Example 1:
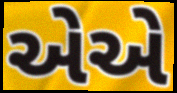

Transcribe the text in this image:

એએ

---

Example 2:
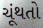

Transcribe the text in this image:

ચૂંથતો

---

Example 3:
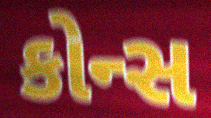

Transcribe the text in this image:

કોન્સ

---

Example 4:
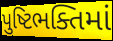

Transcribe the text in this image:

પુષ્ટિભક્તિમાં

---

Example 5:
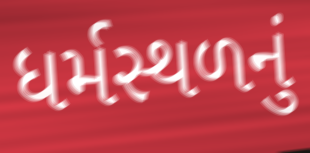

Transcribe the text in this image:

ધર્મસ્થળનું